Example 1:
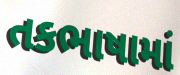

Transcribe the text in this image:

તકભાષામાં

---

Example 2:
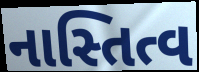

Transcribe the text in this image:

નાસ્તિત્વ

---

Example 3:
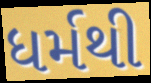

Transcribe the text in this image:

ધર્મથી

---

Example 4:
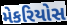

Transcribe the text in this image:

મેકરિયોસ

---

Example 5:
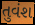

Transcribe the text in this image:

તુવંશ